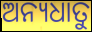
ଅନ୍ୟଧାତୁ